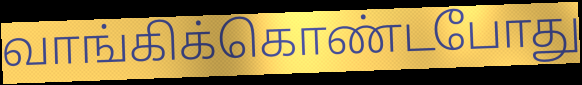
வாங்கிக்கொண்டபோது